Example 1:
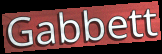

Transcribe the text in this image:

Gabbett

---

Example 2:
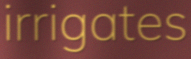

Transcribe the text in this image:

irrigates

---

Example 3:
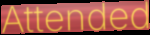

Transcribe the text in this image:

Attended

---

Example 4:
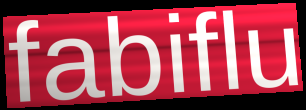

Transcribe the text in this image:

fabiflu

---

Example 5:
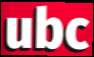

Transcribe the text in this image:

ubc